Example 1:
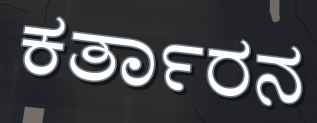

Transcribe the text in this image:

ಕರ್ತಾರನ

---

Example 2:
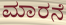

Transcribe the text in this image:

ಮಾರನೆ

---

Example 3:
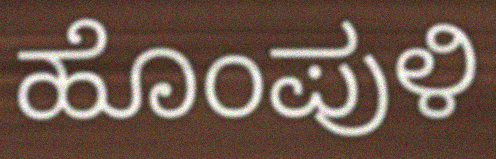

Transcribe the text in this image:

ಹೊಂಪುಳಿ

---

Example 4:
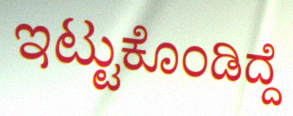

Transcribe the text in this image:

ಇಟ್ಟುಕೊಂಡಿದ್ದೆ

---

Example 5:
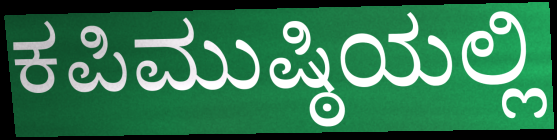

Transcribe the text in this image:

ಕಪಿಮುಷ್ಠಿಯಲ್ಲಿ